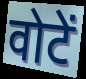
वोटें